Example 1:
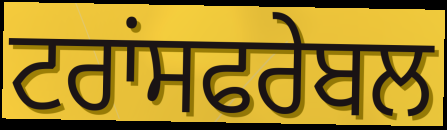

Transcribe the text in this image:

ਟਰਾਂਸਫਰੇਬਲ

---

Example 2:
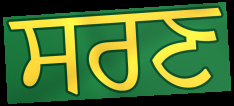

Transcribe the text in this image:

ਸਰਣ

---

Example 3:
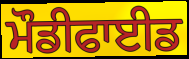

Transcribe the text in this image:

ਮੌਡੀਫਾਈਡ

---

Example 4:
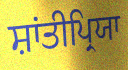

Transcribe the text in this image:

ਸ਼ਾਂਤੀਪ੍ਰਿਯਾ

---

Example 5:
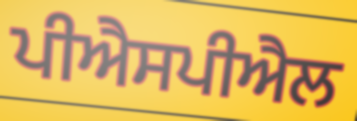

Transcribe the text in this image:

ਪੀਐਸਪੀਐਲ